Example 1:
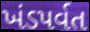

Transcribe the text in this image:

ખંડપર્વત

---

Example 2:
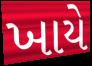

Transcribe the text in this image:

ખાયે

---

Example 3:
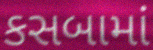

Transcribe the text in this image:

કસબામાં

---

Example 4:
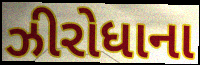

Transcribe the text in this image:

ઝીરોધાના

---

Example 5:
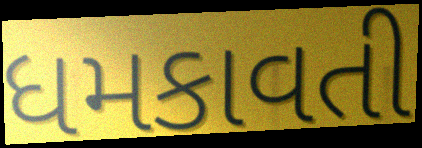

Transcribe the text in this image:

ધમકાવતી